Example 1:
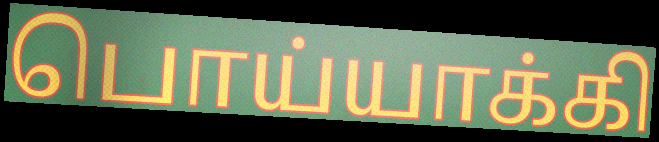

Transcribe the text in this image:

பொய்யாக்கி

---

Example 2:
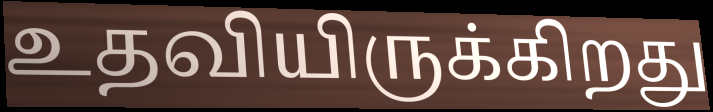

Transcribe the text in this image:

உதவியிருக்கிறது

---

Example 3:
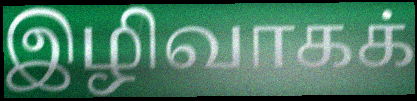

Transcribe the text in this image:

இழிவாகக்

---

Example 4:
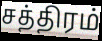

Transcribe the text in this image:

சத்திரம்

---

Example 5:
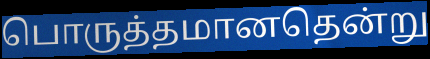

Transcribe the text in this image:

பொருத்தமானதென்று